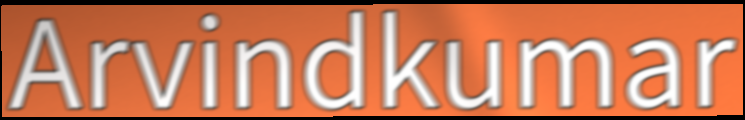
Arvindkumar